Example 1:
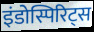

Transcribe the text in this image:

इंडोस्पिरिट्स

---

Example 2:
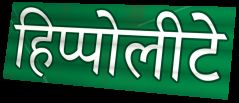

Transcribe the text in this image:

हिप्पोलीटे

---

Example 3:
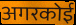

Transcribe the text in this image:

अगरकोई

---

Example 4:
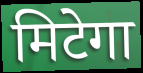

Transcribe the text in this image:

मिटेगा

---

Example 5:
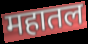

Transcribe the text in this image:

महातल